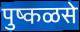
पुष्कळसे